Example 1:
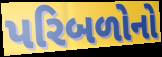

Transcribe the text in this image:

પરિબળોનો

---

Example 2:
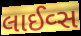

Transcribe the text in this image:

લાઈવ્સ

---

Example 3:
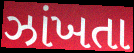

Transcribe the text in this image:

ઝાંખતા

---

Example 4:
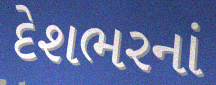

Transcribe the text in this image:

દેશભરનાં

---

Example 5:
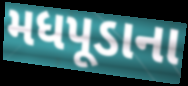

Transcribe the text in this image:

મધપૂડાના